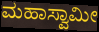
ಮಹಾಸ್ವಾಮೀ